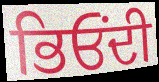
ਭਿਓਂਦੀ